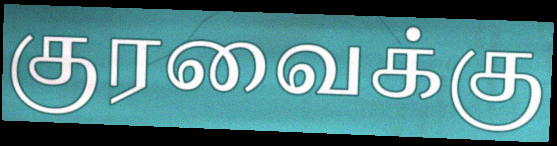
குரவைக்கு